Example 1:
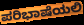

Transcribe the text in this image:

ಪರಿಭಾಷೆಯಲಿ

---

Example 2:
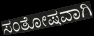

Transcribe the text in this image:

ಸಂತೋಷವಾಗಿ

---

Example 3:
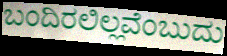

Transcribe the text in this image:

ಬಂದಿರಲಿಲ್ಲವೆಂಬುದು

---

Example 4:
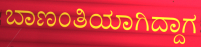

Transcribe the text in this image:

ಬಾಣಂತಿಯಾಗಿದ್ದಾಗ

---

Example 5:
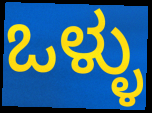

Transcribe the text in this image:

ಒಳ್ಳು